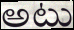
అటు